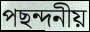
পছন্দনীয়